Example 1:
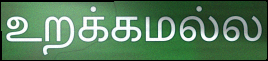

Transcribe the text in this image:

உறக்கமல்ல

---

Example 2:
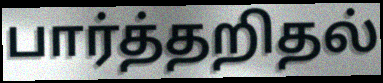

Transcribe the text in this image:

பார்த்தறிதல்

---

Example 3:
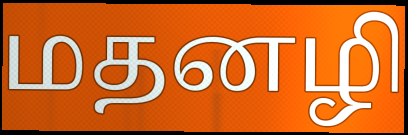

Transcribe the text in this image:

மதனழி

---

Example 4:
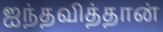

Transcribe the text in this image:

ஐந்தவித்தான்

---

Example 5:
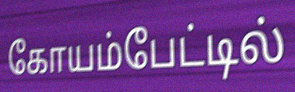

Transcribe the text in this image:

கோயம்பேட்டில்